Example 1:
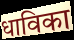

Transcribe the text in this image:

धाविका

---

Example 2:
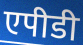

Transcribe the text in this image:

एपीडी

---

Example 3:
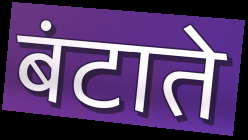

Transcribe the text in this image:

बंटाते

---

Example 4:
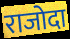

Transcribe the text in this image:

राजोदा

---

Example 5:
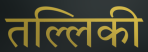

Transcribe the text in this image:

तल्लिकी